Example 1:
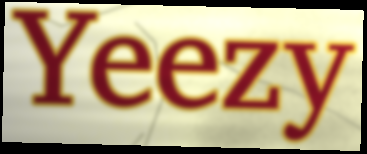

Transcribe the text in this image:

Yeezy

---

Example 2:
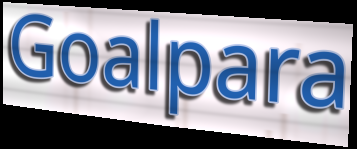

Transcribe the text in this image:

Goalpara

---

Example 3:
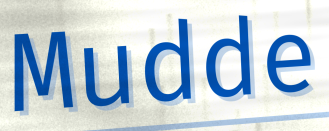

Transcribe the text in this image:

Mudde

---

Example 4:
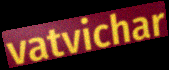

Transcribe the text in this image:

vatvichar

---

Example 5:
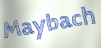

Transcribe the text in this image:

Maybach